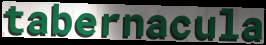
tabernacula